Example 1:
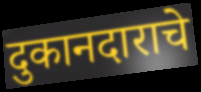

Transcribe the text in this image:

दुकानदाराचे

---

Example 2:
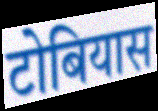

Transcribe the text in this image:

टोबियास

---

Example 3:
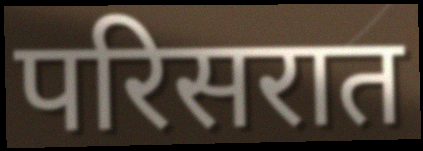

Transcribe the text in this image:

परिसरात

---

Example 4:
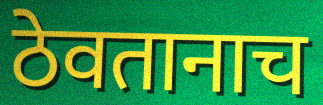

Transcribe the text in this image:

ठेवतानाच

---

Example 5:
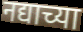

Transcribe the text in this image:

नद्याच्या